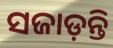
ସଜାଡ଼ନ୍ତି